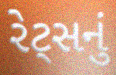
રેટ્સનું